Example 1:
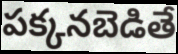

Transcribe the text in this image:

పక్కనబెడితే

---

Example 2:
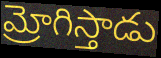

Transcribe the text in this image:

మ్రోగిస్తాడు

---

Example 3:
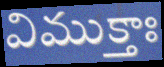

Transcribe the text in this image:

విముక్తాః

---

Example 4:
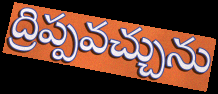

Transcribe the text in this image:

ద్రిప్పవచ్చును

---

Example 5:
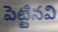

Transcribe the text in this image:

పెట్టినవి